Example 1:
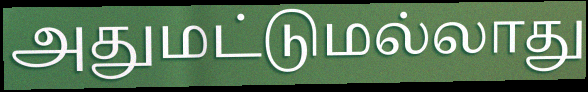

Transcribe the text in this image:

அதுமட்டுமல்லாது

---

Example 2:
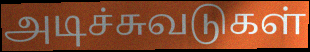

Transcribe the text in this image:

அடிச்சுவடுகள்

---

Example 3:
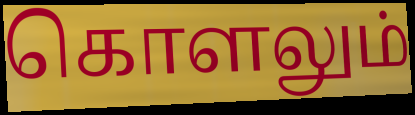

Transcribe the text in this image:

கொளலும்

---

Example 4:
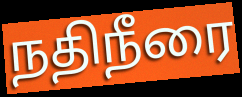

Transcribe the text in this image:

நதிநீரை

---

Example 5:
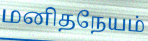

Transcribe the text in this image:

மனிதநேயம்